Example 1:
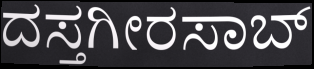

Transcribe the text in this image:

ದಸ್ತಗೀರಸಾಬ್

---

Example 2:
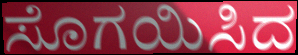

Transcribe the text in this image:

ಸೊಗಯಿಸಿದ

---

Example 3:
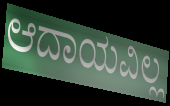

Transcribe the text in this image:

ಆದಾಯವಿಲ್ಲ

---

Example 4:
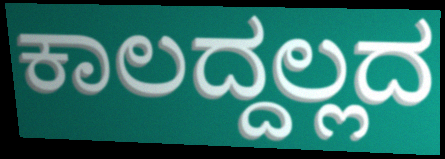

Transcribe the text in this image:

ಕಾಲದ್ದಲ್ಲದ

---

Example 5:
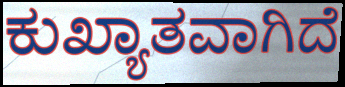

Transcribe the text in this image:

ಕುಖ್ಯಾತವಾಗಿದೆ